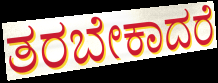
ತರಬೇಕಾದರೆ